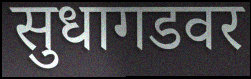
सुधागडवर